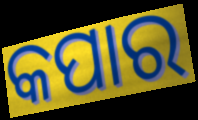
କପାର